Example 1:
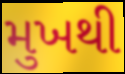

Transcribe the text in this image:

મુખથી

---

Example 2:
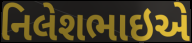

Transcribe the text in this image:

નિલેશભાઇએ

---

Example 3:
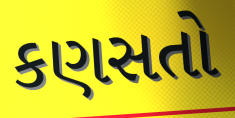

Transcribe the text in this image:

કણસતો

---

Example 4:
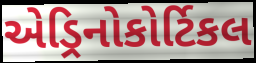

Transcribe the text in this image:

એડ્રિનોકોર્ટિકલ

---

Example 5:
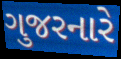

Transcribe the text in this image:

ગુજરનારે